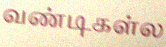
வண்டிகள்ல